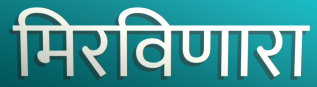
मिरविणारा